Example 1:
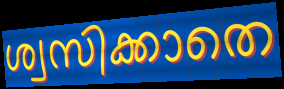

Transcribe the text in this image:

ശ്വസിക്കാതെ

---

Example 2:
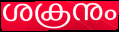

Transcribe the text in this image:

ശക്രനും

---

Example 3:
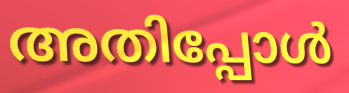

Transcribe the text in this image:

അതിപ്പോൾ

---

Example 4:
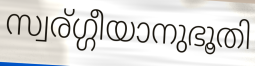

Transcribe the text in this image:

സ്വര്ഗ്ഗീയാനുഭൂതി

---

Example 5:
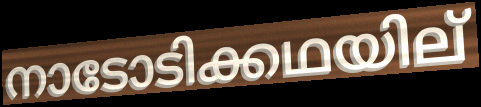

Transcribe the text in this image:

നാടോടിക്കഥയില്